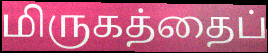
மிருகத்தைப்